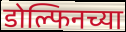
डोल्फिनच्या